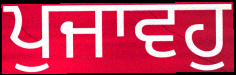
ਪੁਜਾਵਹੁ